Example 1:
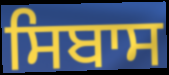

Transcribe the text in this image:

ਸਿਬਾਸ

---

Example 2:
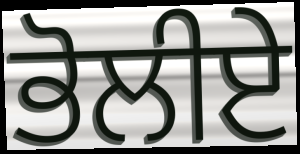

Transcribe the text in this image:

ਭੋਲੀਏ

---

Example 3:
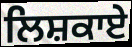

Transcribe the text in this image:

ਲਿਸ਼ਕਾਏ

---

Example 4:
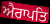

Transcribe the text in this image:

ਐਰਾਪਤਿ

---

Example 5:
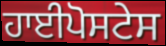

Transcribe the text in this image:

ਹਾਈਪੋਸਟੇਸ